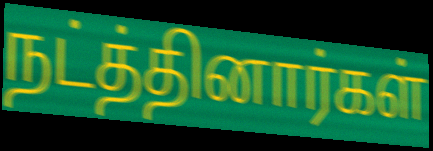
நட்த்தினார்கள்